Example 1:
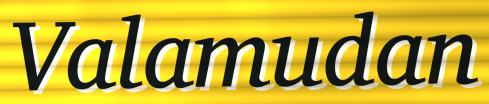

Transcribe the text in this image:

Valamudan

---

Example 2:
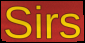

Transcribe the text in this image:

Sirs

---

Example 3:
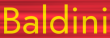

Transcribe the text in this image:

Baldini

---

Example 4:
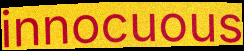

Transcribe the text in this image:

innocuous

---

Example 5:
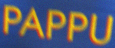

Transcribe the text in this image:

PAPPU